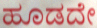
ಹೂಡದೇ